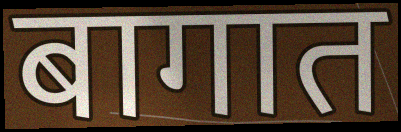
बागात